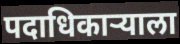
पदाधिकाऱ्याला